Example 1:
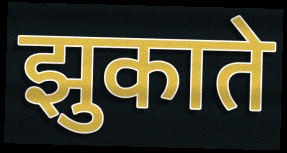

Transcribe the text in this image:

झुकाते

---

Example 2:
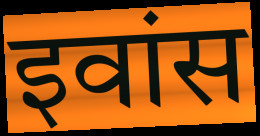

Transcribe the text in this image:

इवांस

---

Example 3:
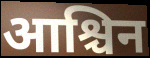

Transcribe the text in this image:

आश्चिन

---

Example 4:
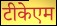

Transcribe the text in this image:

टीकेएम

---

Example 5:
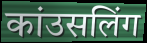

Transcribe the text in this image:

कांउसलिंग